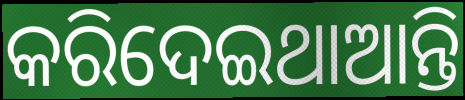
କରିଦେଇଥାଆନ୍ତି